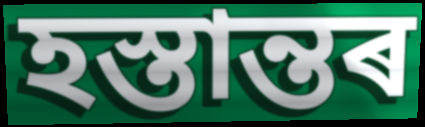
হস্তান্তৰ